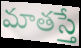
మాతస్తే